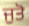
ਜੁਤੋ